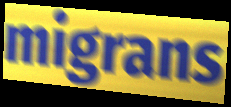
migrans